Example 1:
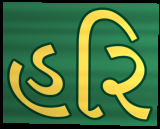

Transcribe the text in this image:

હરિ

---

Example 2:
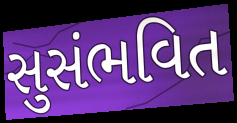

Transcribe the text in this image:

સુસંભવિત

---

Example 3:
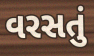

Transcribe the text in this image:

વરસતું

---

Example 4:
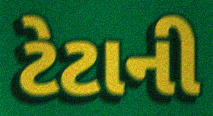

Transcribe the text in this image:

ટેટાની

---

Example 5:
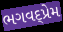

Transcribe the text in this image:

ભગવદ્પ્રેમ